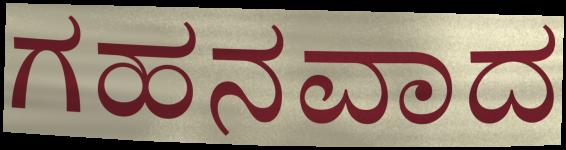
ಗಹನವಾದ